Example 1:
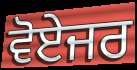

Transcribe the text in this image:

ਵੋਏਜਰ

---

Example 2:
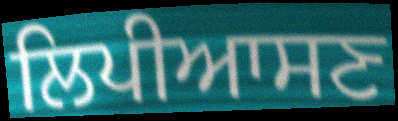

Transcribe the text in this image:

ਲਿਪੀਆਸਣ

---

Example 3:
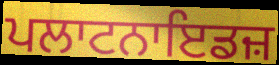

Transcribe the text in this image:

ਪਲਾਟਨਾਇਡਜ਼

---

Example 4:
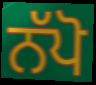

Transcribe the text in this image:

ਨੱਪੋ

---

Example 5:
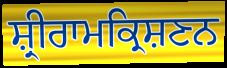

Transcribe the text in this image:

ਸ਼੍ਰੀਰਾਮਕ੍ਰਿਸ਼ਣਨ